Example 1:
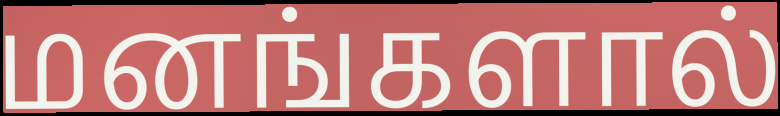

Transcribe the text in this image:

மனங்களால்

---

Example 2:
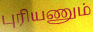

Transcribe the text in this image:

புரியணும்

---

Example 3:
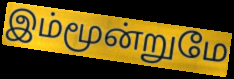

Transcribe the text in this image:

இம்மூன்றுமே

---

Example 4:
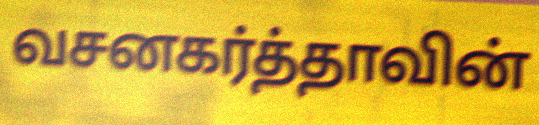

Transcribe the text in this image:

வசனகர்த்தாவின்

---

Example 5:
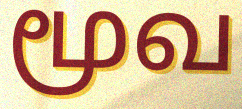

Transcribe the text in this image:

மூவ